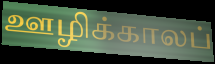
ஊழிக்காலப்